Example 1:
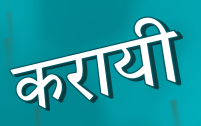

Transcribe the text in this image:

करायी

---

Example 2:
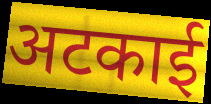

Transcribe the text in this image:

अटकाई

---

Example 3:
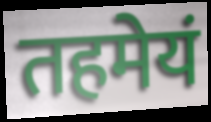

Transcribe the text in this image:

तहमेयं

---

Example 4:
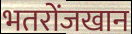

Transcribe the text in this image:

भतरोंजखान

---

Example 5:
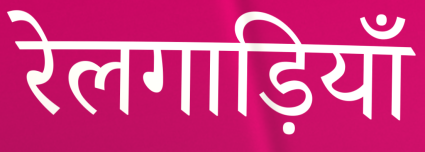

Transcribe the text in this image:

रेलगाड़ियाँ